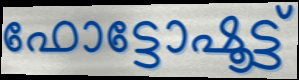
ഫോട്ടോഷൂട്ട്